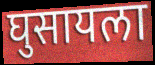
घुसायला